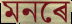
মনৰে